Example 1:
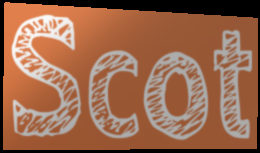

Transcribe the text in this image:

Scot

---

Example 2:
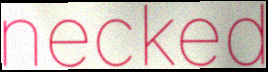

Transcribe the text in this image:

necked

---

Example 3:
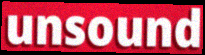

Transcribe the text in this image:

unsound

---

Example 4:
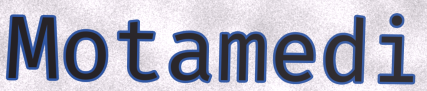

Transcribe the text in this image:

Motamedi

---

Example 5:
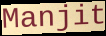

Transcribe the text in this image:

Manjit